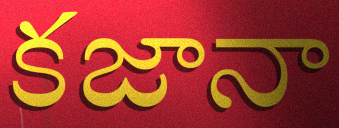
కజానా